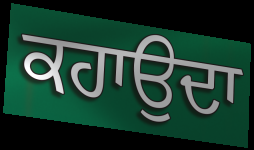
ਕਹਾਉਦਾ